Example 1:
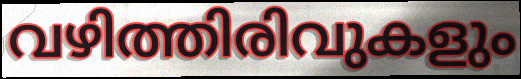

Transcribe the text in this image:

വഴിത്തിരിവുകളും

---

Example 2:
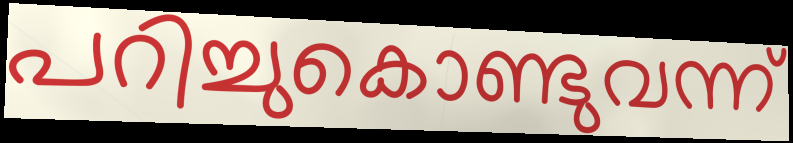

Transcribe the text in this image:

പറിച്ചുകൊണ്ടുവന്ന്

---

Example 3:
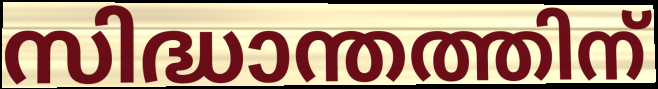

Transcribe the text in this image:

സിദ്ധാന്തത്തിന്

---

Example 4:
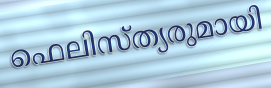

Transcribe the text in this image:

ഫെലിസ്ത്യരുമായി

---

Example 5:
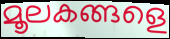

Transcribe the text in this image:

മൂലകങ്ങളെ